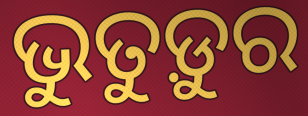
ଭୁତୁଡ଼ୁର